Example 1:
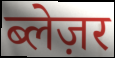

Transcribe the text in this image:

ब्लेज़र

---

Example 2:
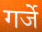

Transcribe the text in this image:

गर्जे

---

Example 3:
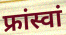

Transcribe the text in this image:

फ्रांस्वां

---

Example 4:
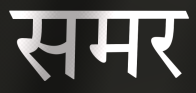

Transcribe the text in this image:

समर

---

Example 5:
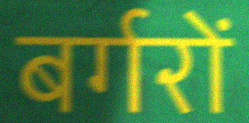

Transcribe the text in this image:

बर्गरों